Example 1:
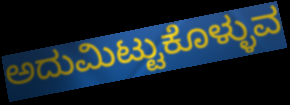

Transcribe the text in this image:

ಅದುಮಿಟ್ಟುಕೊಳ್ಳುವ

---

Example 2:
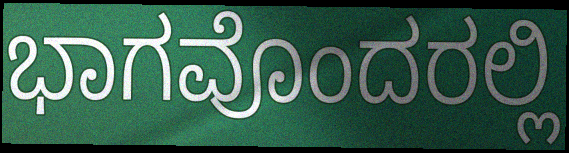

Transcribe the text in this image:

ಭಾಗವೊಂದರಲ್ಲಿ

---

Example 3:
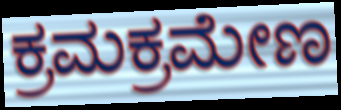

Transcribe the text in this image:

ಕ್ರಮಕ್ರಮೇಣ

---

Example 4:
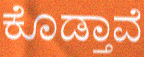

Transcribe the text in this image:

ಕೊಡ್ತಾವೆ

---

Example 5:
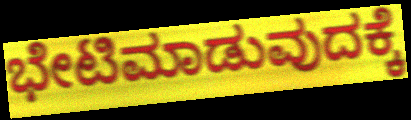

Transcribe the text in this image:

ಭೇಟಿಮಾಡುವುದಕ್ಕೆ